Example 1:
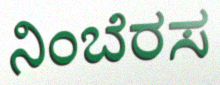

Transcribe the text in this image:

ನಿಂಬೆರಸ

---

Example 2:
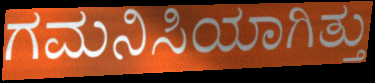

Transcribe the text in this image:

ಗಮನಿಸಿಯಾಗಿತ್ತು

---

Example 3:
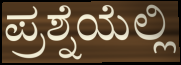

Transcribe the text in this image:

ಪ್ರಶ್ನೆಯೆಲ್ಲಿ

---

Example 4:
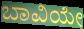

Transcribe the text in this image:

ಬಾವಿಯೇ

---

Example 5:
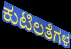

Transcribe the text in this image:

ಕುಟಿಲತೆಗಳ